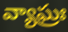
వ్యాఘ్రః